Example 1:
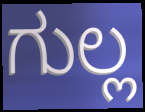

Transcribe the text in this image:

ಗುಲ್ಲ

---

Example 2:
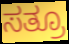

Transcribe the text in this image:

ಸತ್ರೂ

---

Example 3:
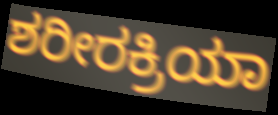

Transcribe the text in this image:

ಶರೀರಕ್ರಿಯಾ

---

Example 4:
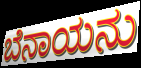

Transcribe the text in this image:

ಬೆನಾಯನು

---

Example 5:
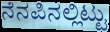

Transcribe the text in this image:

ನೆನಪಿನಲ್ಲಿಟ್ಟು